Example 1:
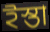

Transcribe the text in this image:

ইস্তা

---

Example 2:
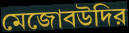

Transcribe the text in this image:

মেজোবউদির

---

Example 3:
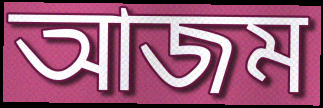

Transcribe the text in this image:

আজম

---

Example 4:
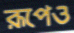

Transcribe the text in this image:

রূপেও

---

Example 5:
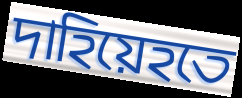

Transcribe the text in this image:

দাহিয়েহতে